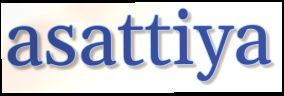
asattiya